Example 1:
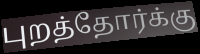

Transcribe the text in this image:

புறத்தோர்க்கு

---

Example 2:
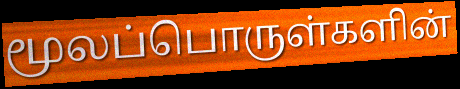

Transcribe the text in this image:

மூலப்பொருள்களின்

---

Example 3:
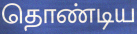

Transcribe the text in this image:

தொண்டிய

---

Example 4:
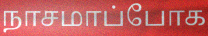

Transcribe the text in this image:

நாசமாப்போக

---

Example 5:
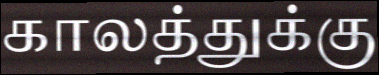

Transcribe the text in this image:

காலத்துக்கு